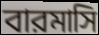
বারমাসি